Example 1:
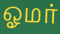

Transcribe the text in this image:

ஓமர்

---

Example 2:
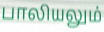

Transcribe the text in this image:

பாலியலும்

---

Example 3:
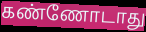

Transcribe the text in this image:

கண்ணோடாது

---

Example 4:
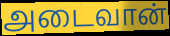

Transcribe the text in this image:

அடைவான்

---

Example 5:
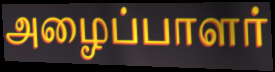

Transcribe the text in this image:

அழைப்பாளர்